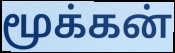
மூக்கன்